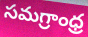
సమగ్రాంధ్ర